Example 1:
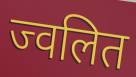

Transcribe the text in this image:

ज्वलित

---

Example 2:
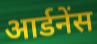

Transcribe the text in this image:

आर्डनेंस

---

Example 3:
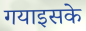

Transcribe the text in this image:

गयाइसके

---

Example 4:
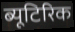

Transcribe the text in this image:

ब्यूटिरिक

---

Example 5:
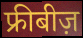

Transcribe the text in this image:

फ्रीबीज़